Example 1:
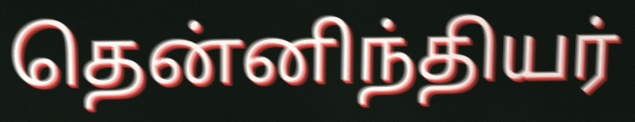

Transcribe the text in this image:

தென்னிந்தியர்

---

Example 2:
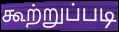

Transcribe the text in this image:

கூற்றுப்படி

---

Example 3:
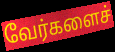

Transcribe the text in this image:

வேர்களைச்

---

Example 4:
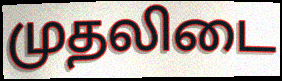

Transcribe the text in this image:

முதலிடை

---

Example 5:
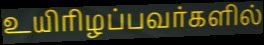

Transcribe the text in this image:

உயிரிழப்பவர்களில்